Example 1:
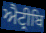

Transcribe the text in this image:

ਐਟ੍ਰੀਬਿ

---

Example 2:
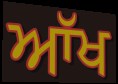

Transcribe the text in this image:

ਆੱਖ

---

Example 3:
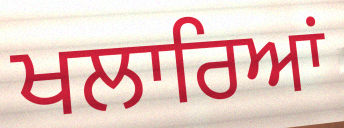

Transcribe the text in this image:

ਖਲਾਰਿਆਂ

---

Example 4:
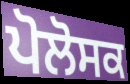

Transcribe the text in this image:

ਪੋਲੋਸਕ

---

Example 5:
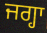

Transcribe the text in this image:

ਜਗ੍ਹਾ